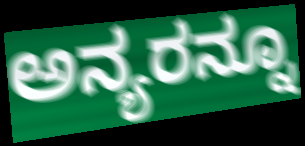
ಅನ್ಯರನ್ನೂ